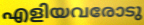
എളിയവരോടു